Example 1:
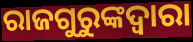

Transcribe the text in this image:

ରାଜଗୁରୁଙ୍କଦ୍ୱାରା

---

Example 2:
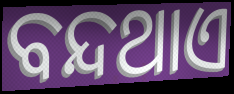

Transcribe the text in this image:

ବନ୍ଦଥାଏ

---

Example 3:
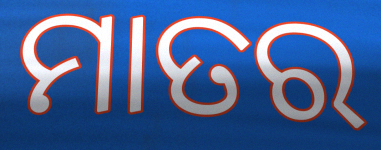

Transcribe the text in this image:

ମାତର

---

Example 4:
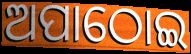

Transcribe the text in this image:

ଅପାଠୋଇ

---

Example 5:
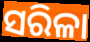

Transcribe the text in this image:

ସରିଳା